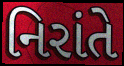
નિરાંતે